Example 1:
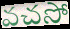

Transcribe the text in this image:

వచసో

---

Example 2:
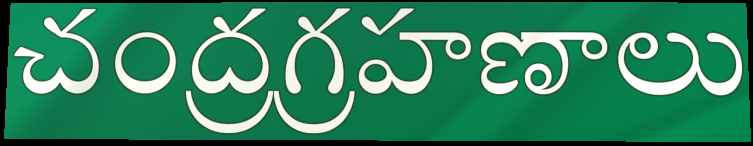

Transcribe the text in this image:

చంద్రగ్రహణాలు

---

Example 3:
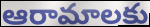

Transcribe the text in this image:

ఆరామాలకు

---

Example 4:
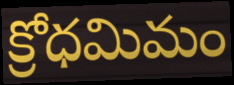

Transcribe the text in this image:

క్రోధమిమం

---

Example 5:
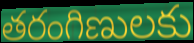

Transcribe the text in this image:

తరంగిణులకు